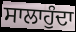
ਸਾਲਾਹੁੰਦਾ